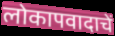
लोकापवादाचें